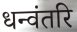
धन्वंतरि